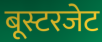
बूस्टरजेट